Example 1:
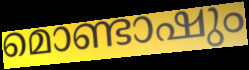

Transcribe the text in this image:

മൊണ്ടാഷും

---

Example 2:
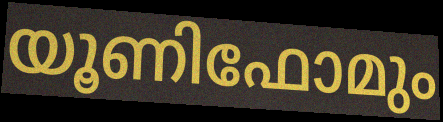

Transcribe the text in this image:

യൂണിഫോമും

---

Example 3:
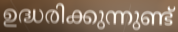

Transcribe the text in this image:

ഉദ്ധരിക്കുന്നുണ്ട്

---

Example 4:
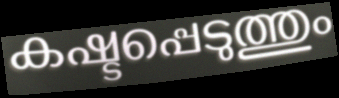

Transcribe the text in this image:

കഷ്ടപ്പെടുത്തും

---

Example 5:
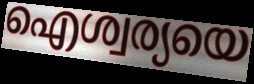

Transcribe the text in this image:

ഐശ്വര്യയെ